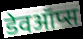
डेवऑप्स